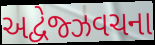
અદ્વેજ્ઝવચના